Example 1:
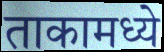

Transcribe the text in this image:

ताकामध्ये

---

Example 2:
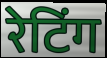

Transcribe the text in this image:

रेटिंग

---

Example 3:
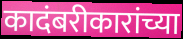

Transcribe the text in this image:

कादंबरीकारांच्या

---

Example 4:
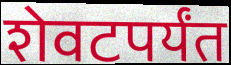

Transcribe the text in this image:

शेवटपर्यंत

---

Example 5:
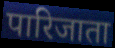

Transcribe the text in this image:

पारिजाता